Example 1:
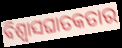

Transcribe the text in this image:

ବିଶ୍ଵାସଘାତକତାର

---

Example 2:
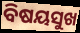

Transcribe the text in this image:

ବିଷୟସୁଖ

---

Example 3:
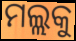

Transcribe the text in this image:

ମଲ୍ଲକୁ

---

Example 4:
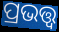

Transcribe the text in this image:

ପ୍ରଭତ୍ତ୍ଵ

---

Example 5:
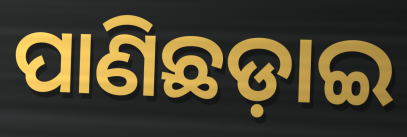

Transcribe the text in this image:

ପାଣିଛଡ଼ାଇ